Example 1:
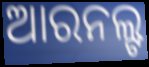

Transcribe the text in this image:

ଆରନଲ୍ଟ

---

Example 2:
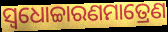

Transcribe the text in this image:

ସ୍ଵଧୋଚ୍ଚାରଣମାତ୍ରେଣ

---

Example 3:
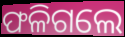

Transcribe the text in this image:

ଫଳିଗଲେ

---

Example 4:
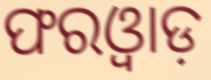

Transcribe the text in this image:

ଫରଓ୍ୱାଡ଼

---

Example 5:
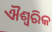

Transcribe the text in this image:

ଐଶ୍ୱରିକ